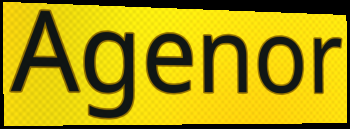
Agenor